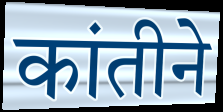
कांतीने